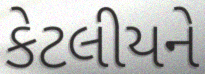
કેટલીયને